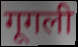
गूगली